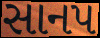
સાનપ